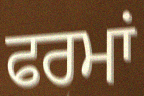
ਫਰਮਾਂ